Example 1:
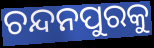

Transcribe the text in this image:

ଚନ୍ଦନପୁରକୁ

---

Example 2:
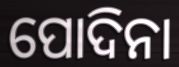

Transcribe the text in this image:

ପୋଦିନା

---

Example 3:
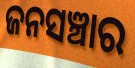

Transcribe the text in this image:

ଜନସଞ୍ଚାର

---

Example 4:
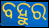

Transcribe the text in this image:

ବହୁର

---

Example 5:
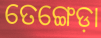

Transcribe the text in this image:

ତେଙ୍ଗେଡ଼ା